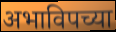
अभाविपच्या